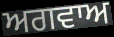
ਅਗਵਾਅ